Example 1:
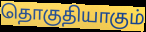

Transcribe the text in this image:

தொகுதியாகும்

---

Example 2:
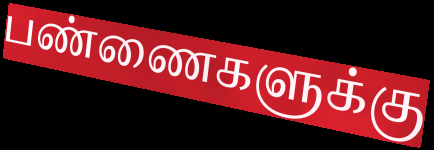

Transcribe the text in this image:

பண்ணைகளுக்கு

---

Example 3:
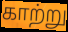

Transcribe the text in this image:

காற்று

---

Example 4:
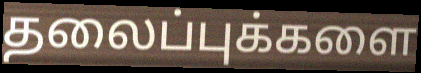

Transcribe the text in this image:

தலைப்புக்களை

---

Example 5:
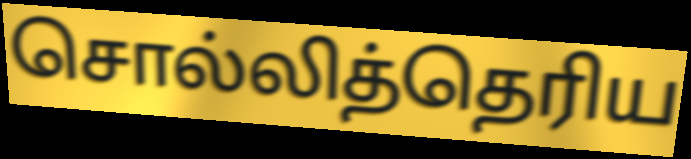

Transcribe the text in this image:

சொல்லித்தெரிய